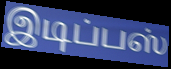
இடிப்பஸ்